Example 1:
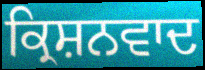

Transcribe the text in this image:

ਕ੍ਰਿਸ਼ਨਵਾਦ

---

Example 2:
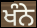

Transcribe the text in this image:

ਖੰਨੇ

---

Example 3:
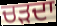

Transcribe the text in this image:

ਚੜਦਾ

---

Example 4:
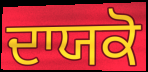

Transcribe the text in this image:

ਦਾਯਕੋ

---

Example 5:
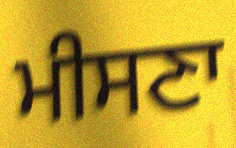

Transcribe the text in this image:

ਮੀਸਣਾ